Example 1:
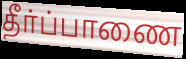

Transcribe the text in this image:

தீர்ப்பாணை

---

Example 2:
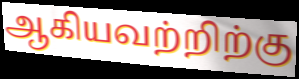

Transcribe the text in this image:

ஆகியவற்றிற்கு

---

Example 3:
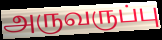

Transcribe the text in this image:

அருவருப்பு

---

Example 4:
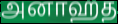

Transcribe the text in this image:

அனாஹத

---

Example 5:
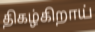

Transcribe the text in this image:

திகழ்கிறாய்